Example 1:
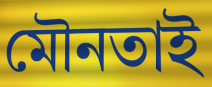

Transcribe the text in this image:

মৌনতাই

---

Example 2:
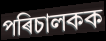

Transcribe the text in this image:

পৰিচালকক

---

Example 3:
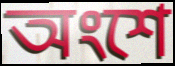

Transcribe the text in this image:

অংশে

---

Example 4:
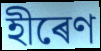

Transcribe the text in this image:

হীৰেণ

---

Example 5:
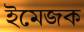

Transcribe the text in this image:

ইমেজক